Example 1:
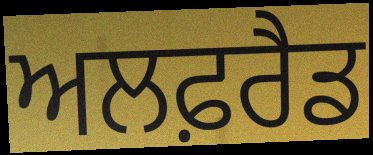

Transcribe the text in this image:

ਅਲਫ਼ਰੈਡ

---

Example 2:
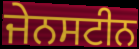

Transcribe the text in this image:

ਜੇਨਸਟੀਨ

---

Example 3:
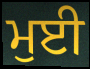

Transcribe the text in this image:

ਮੁਈ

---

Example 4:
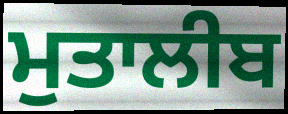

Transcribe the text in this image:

ਮੁਤਾਲੀਬ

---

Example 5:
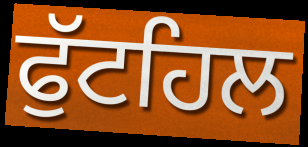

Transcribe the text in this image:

ਫੁੱਟਹਿਲ